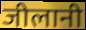
जीलानी